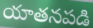
యాతనపడి